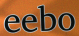
eebo